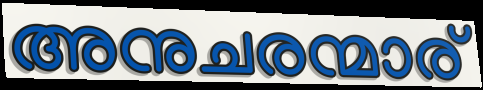
അനുചരന്മാര്